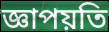
জ্ঞাপয়তি